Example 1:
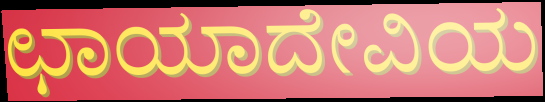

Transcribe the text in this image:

ಛಾಯಾದೇವಿಯ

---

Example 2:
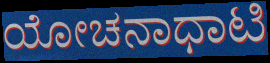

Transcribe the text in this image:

ಯೋಚನಾಧಾಟಿ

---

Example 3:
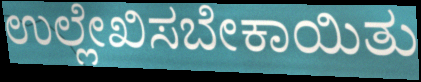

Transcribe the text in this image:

ಉಲ್ಲೇಖಿಸಬೇಕಾಯಿತು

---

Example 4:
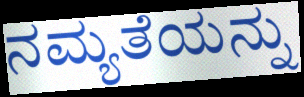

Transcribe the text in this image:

ನಮ್ಯತೆಯನ್ನು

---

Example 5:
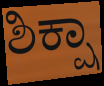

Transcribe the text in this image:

ಶಿಕ್ಷಾ